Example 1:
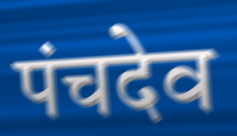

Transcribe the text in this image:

पंचदेव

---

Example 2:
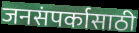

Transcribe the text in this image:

जनसंपर्कासाठी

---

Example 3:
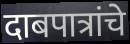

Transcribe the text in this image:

दाबपात्रांचे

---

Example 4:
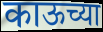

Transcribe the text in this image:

काऊच्या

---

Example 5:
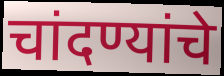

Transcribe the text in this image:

चांदण्यांचे